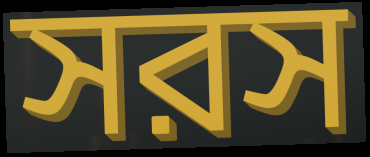
সরস